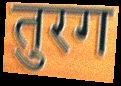
तुरग